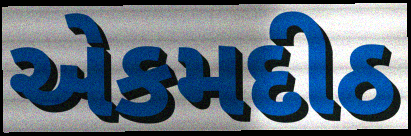
એકમદીઠ